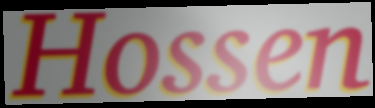
Hossen